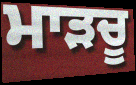
ਮਾੜਚੂ